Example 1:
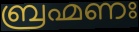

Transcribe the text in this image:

ബ്രഹ്മണഃ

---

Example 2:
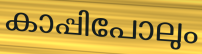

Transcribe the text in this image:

കാപ്പിപോലും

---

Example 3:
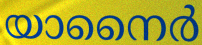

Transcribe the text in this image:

യാനൈർ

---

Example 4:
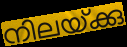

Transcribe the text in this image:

നിലയ്‌ക്കു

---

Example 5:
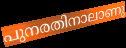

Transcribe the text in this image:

പുനരതിനാലാണു